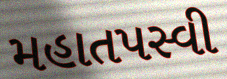
મહાતપસ્વી